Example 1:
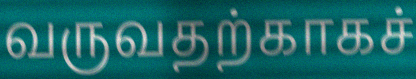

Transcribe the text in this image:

வருவதற்காகச்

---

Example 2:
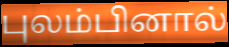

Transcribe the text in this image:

புலம்பினால்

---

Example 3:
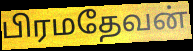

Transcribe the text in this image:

பிரமதேவன்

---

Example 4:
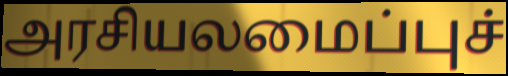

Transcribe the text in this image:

அரசியலமைப்புச்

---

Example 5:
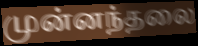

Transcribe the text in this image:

முன்னந்தலை